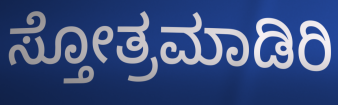
ಸ್ತೋತ್ರಮಾಡಿರಿ